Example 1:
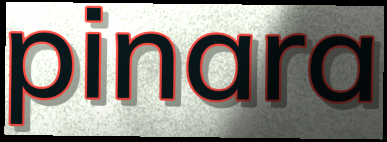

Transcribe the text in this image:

pinara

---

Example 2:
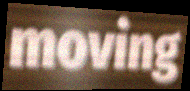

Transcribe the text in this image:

moving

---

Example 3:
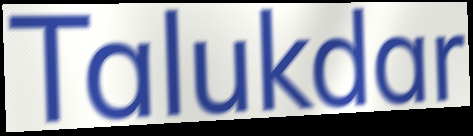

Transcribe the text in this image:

Talukdar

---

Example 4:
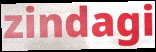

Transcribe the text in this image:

zindagi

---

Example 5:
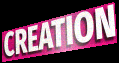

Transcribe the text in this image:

CREATION